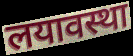
लयावस्था